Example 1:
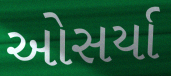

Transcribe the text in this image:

ઓસર્યા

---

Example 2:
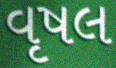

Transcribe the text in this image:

વૃષલ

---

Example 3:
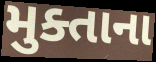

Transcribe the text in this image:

મુક્તાના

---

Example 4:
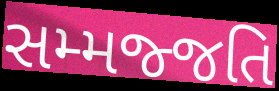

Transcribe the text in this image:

સમ્મજ્જતિ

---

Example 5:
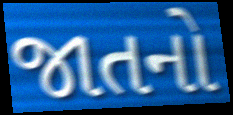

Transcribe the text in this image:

જાતનો